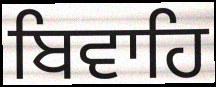
ਬਿਵਾਹਿ